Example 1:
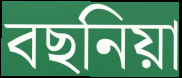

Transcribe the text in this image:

বছনিয়া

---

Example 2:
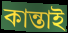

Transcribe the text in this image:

কান্তাই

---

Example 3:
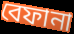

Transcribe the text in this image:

বেফানা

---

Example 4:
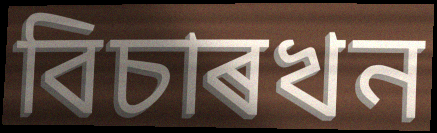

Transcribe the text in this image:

বিচাৰখন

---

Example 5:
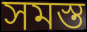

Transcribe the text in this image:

সমস্ত